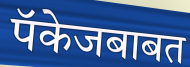
पॅकेजबाबत